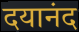
दयानंद